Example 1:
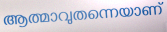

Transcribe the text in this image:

ആത്മാവുതന്നെയാണ്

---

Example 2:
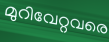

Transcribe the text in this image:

മുറിവേറ്റവരെ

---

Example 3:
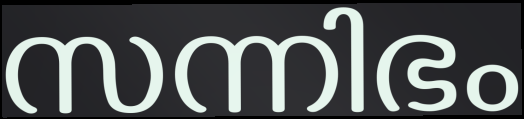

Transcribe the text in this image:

സന്നിഭം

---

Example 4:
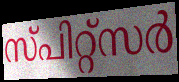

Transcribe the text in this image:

സ്പിറ്റ്സർ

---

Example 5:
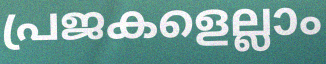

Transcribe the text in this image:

പ്രജകളെല്ലാം